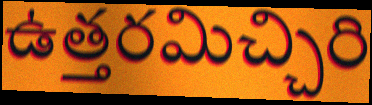
ఉత్తరమిచ్చిరి